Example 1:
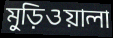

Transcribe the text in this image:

মুড়িওয়ালা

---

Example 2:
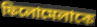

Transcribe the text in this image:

ফিলোমেলাকে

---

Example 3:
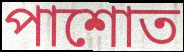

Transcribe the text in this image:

পাশোত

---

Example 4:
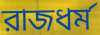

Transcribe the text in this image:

রাজধর্ম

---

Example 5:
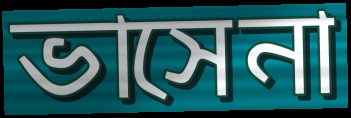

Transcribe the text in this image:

ভাসেনা